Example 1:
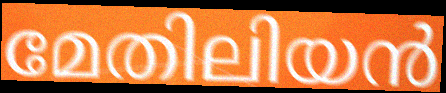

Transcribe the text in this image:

മേതിലിയൻ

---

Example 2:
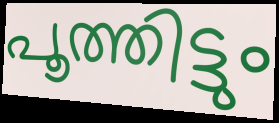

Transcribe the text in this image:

പൂത്തിട്ടും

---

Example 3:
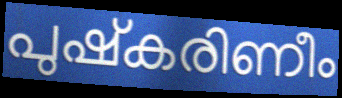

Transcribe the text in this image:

പുഷ്കരിണീം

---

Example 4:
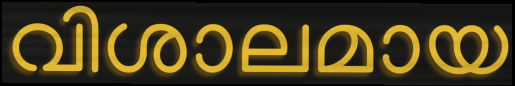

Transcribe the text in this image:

വിശാലമായ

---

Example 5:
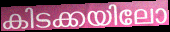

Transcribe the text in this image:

കിടക്കയിലോ